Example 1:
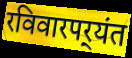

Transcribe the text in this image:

रविवारपर्यंत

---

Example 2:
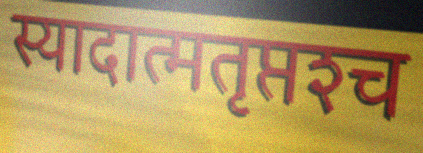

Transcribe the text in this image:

स्यादात्मतृप्तश्च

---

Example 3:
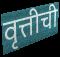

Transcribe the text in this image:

वृत्तीची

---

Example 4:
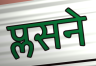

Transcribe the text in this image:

प्लसने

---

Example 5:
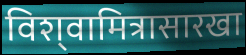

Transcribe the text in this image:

विश्वामित्रासारखा